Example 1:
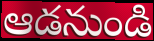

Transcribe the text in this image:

ఆడనుండి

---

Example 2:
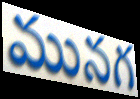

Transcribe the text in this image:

మునగ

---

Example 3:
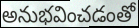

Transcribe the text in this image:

అనుభవించడంతో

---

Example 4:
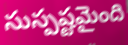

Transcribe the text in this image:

సుస్పష్టమైంది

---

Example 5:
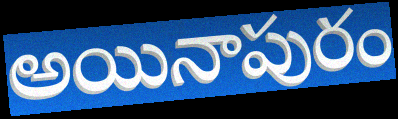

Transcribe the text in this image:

అయినాపురం